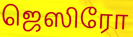
ஜெஸிரோ